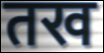
तख